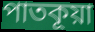
পাতকূয়া